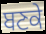
ਬਣਕੇ